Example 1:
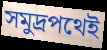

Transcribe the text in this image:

সমুদ্রপথেই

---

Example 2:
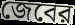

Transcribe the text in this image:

জেবের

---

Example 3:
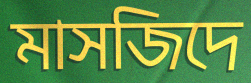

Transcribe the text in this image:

মাসজিদে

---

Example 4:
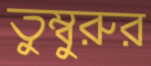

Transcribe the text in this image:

তুম্বুরুর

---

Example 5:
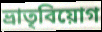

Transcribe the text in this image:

ভ্রাতৃবিয়োগ